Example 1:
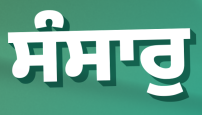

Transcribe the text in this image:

ਸੰਸਾਰੁ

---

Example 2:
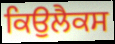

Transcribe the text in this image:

ਕਿਉਲੈਕਸ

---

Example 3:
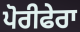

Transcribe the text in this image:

ਪੋਰੀਫੇਰਾ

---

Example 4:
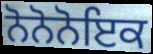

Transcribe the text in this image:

ਨੋਨੋਨੋਇਕ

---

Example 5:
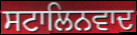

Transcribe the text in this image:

ਸਟਾਲਿਨਵਾਦ